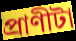
প্রাণীটা